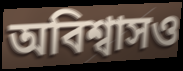
অবিশ্বাসও